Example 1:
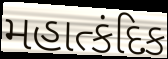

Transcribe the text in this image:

મહાત્કંદિક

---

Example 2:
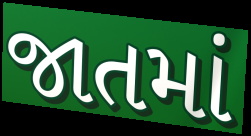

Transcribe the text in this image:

જાતમાં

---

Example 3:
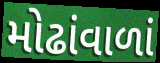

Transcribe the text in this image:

મોઢાંવાળાં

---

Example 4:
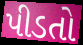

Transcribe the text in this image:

પીડતો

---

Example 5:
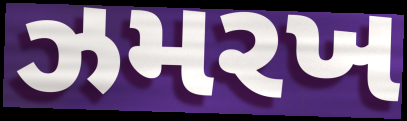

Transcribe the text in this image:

ઝમરખ